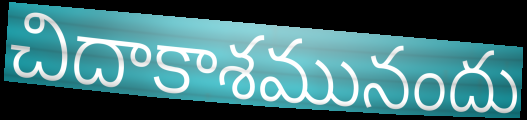
చిదాకాశమునందు